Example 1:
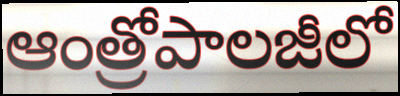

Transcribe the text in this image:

ఆంత్రోపాలజీలో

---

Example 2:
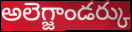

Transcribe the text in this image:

అలెగ్జాండర్కు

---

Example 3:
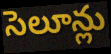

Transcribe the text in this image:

సెలూన్లు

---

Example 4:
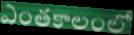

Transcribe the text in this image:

ఎంతకాలంలో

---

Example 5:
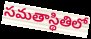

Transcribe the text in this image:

సమతాస్థితిలో